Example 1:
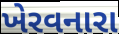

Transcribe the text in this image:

ખેરવનારા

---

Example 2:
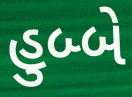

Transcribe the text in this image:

હુબ્બે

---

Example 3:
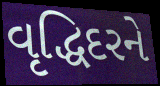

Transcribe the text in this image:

વૃદ્ધિદરને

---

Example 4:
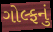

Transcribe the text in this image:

ગોલ્ફનું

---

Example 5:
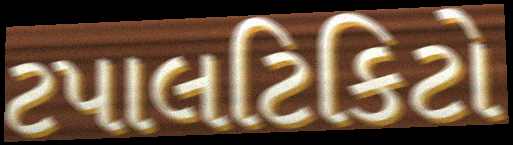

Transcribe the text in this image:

ટપાલટિકિટો